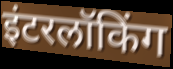
इंटरलॉकिंग